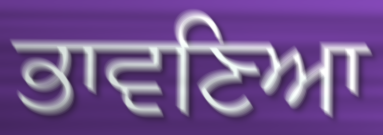
ਭਾਵਣਿਆ